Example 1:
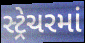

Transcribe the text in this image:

સ્ટ્રેચરમાં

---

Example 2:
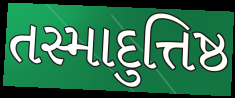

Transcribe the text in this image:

તસ્માદુત્તિષ્ઠ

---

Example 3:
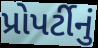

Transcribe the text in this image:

પ્રોપર્ટીનું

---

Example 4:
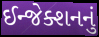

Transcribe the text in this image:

ઈન્જેક્શનનું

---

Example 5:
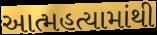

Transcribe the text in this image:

આત્મહત્યામાંથી